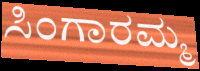
ಸಿಂಗಾರಮ್ಮ